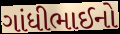
ગાંધીભાઈનો